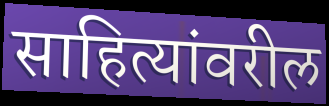
साहित्यांवरील